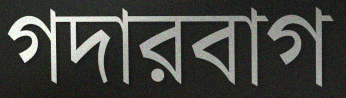
গদারবাগ